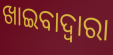
ଖାଇବାଦ୍ଵାରା